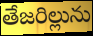
తేజరిల్లును